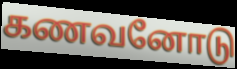
கணவனோடு